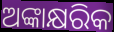
ଅଙ୍କାକ୍ଷରିକ